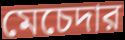
মেচেদার